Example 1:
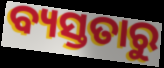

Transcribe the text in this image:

ବ୍ୟସ୍ତତାରୁ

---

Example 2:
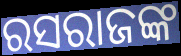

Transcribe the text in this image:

ରସରାଜଙ୍କ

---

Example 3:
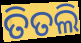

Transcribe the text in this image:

ତିତଲି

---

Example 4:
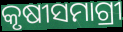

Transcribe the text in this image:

କୃଷୀସମାଗ୍ରୀ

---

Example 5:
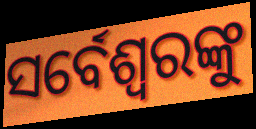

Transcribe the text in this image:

ସର୍ବେଶ୍ୱରଙ୍କୁ